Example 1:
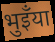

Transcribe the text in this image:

भुइँया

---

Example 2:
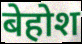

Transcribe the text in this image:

बेहोश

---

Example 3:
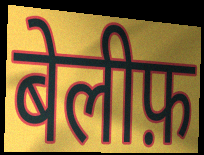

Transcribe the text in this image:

बेलीफ़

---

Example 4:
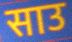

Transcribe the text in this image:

साउ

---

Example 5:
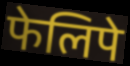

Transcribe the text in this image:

फेलिपे